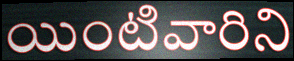
యింటివారిని